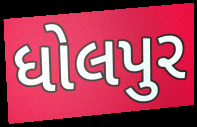
ધોલપુર